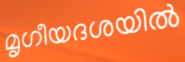
മൃഗീയദശയിൽ